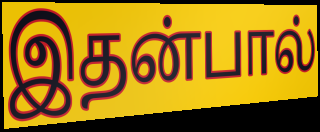
இதன்பால்